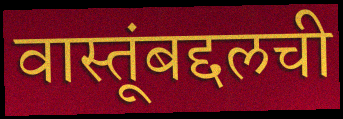
वास्तूंबद्दलची